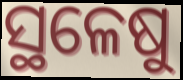
ସ୍ଥଳେଷୁ